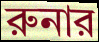
রুনার